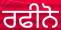
ਰਫੀਨੋ